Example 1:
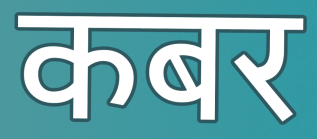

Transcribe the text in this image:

कबर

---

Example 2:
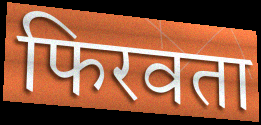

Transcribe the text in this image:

फिरवता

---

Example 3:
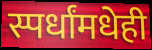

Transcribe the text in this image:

स्पर्धांमधेही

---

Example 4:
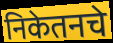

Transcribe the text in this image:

निकेतनचे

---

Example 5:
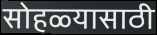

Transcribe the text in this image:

सोहळ्यासाठी